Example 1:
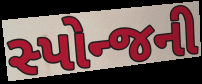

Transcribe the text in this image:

સ્પોન્જની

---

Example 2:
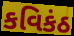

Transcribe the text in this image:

કવિકંઠ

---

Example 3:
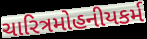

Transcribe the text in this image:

ચારિત્રમોહનીયકર્મ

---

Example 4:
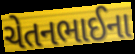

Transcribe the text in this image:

ચેતનભાઈના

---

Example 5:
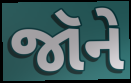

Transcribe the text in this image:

જૉને